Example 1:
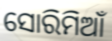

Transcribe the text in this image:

ସୋରିମିଆଁ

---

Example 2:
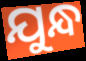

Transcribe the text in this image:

ଯୁନ୍ଧ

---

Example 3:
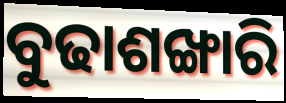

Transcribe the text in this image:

ବୁଢାଶଙ୍ଖାରି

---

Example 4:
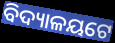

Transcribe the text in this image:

ବିଦ୍ୟାଳୟଟେ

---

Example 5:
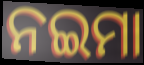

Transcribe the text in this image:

ନଇମା